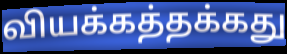
வியக்கத்தக்கது